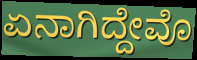
ಏನಾಗಿದ್ದೇವೊ